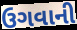
ઉગવાની